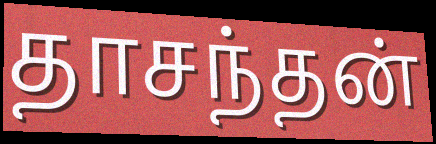
தாசந்தன்